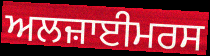
ਅਲਜ਼ਾਈਮਰਸ